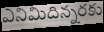
ఎనిమిదిన్నరకు